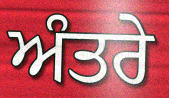
ਅੰਤਰੇ